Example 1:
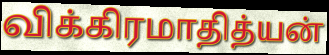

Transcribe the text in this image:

விக்கிரமாதித்யன்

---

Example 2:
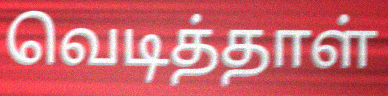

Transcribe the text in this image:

வெடித்தாள்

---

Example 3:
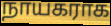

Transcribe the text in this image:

நாயகராக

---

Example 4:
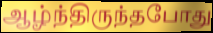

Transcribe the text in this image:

ஆழ்ந்திருந்தபோது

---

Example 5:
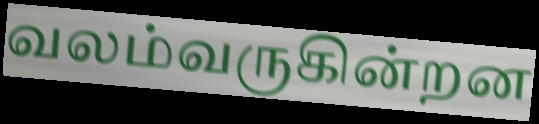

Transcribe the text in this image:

வலம்வருகின்றன